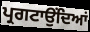
ਪ੍ਰਗਟਾਉਂਦਿਆਂ